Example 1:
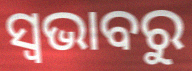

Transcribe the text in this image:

ସ୍ୱଭାବରୁ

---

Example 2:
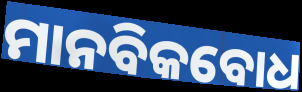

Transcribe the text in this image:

ମାନବିକବୋଧ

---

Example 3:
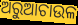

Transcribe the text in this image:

ଅରୁଆଚାଉଳ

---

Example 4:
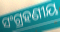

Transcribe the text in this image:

ସଂଗ୍ରହଣୀୟ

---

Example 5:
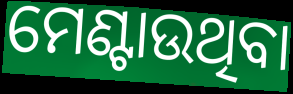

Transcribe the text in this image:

ମେଣ୍ଟାଉଥିବା